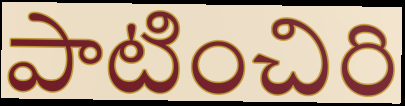
పాటించిరి